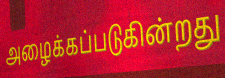
அழைக்கப்படுகின்றது